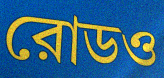
রোডও